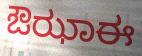
ಔಝಾಈ